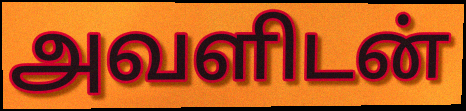
அவளிடன்